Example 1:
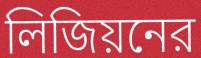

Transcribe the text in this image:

লিজিয়নের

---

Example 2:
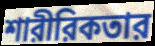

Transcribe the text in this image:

শারীরিকতার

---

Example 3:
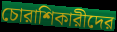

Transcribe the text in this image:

চোরাশিকারীদের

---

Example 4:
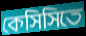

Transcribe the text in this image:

কেসিসিতে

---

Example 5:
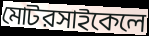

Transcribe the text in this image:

মোটরসাইকেলে